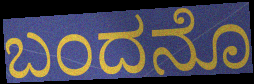
ಬಂದನೊ